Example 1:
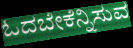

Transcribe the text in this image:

ಓದಬೇಕೆನ್ನಿಸುವ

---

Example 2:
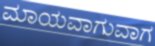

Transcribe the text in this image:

ಮಾಯವಾಗುವಾಗ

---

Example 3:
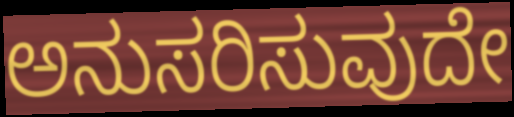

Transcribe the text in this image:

ಅನುಸರಿಸುವುದೇ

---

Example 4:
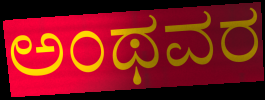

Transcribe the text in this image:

ಅಂಥವರ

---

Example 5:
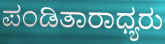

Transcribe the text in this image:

ಪಂಡಿತಾರಾಧ್ಯರು